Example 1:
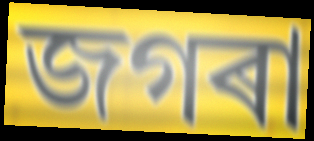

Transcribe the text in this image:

জগৰা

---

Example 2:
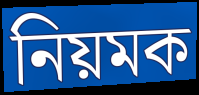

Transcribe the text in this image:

নিয়মক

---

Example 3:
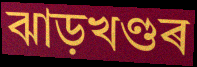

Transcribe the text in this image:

ঝাড়খণ্ডৰ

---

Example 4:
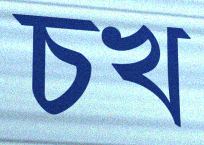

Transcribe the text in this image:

চখ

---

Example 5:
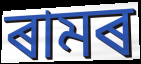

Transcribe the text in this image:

ৰামৰ